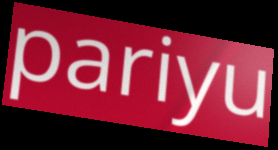
pariyu